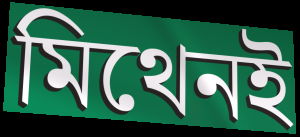
মিথেনই